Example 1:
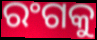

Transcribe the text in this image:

ରଂଗକୁ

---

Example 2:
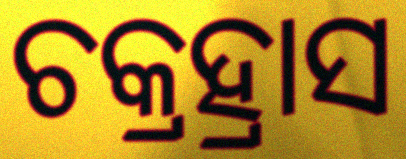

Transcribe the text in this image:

ଚକ୍ରହ୍ରାସ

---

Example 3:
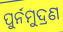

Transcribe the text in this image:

ପୁର୍ନମୁଦ୍ରଣ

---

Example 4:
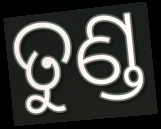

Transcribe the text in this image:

ତୁଣ୍ଡ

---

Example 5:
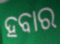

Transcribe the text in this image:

ହବାର